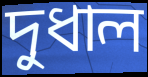
দুধাল